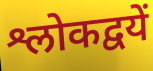
श्लोकद्वयें